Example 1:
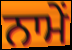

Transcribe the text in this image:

ਨਾਮੇਂ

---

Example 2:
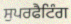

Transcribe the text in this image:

ਸੁਪਰਫੈਟਿੰਗ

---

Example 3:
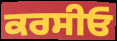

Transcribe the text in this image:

ਕਰਸੀਓ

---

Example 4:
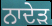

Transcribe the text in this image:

ਨਾਦੇੜ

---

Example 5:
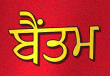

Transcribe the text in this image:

ਬੈਂਤਮ